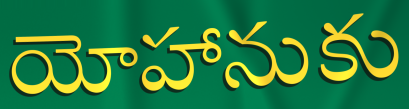
యోహానుకు